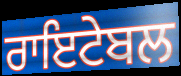
ਰਾਇਟੇਬਲ